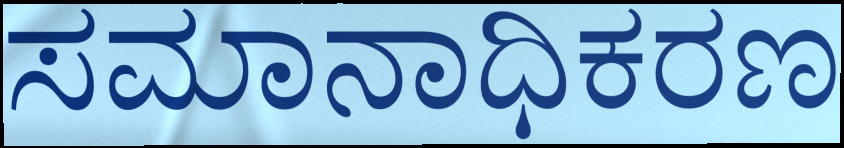
ಸಮಾನಾಧಿಕರಣ